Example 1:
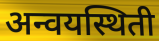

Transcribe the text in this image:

अन्वयस्थिती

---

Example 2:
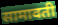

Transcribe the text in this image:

सामावती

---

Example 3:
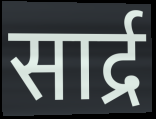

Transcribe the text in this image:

सार्द्र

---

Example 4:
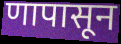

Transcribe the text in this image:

णापासून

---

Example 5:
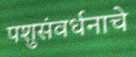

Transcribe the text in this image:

पशुसंवर्धनाचे